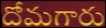
దోమగారు